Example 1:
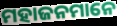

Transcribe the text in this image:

ମହାଜନମାନେ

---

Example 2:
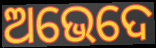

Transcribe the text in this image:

ଅଭେଦେ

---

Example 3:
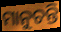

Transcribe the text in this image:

ମାନୁଚନ୍ତି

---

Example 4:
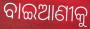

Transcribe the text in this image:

ବାଇଆଣୀକୁ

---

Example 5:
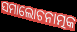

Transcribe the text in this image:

ସମାଲୋଚନାତ୍ମକ